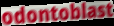
odontoblast